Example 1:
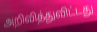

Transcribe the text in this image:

அறிவித்துவிட்டது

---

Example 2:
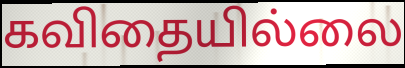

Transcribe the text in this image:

கவிதையில்லை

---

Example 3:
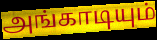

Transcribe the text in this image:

அங்காடியும்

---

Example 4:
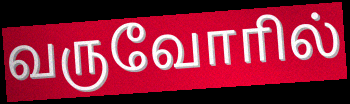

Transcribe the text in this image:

வருவோரில்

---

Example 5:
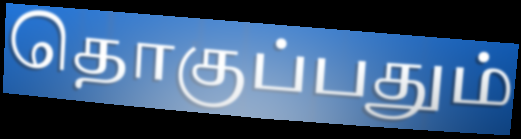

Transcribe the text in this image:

தொகுப்பதும்